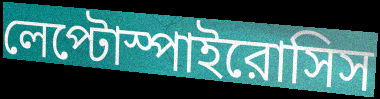
লেপ্টোস্পাইরোসিস